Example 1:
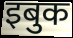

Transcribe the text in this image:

इबुक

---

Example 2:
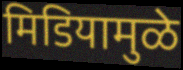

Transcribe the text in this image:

मिडियामुळे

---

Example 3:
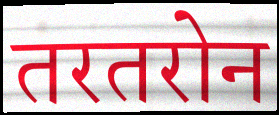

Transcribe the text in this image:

तरतरोन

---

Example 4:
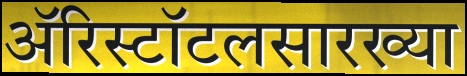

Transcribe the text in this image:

ॲरिस्टॉटलसारख्या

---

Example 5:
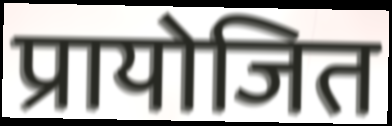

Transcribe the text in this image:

प्रायोजित